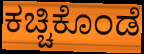
ಕಚ್ಚಿಕೊಂಡೆ